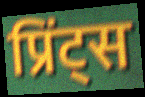
प्रिंट्स